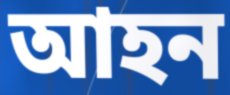
আহন